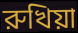
রুখিয়া